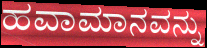
ಹವಾಮಾನವನ್ನು